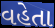
વહેતા